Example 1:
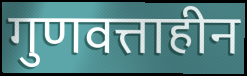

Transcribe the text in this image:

गुणवत्ताहीन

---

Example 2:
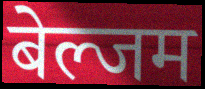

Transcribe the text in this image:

बेल्जम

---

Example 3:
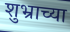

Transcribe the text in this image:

शुभ्राच्या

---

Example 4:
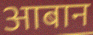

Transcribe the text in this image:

आबान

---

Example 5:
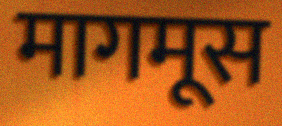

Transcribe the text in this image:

मागमूस